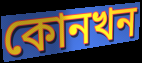
কোনখন